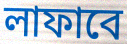
লাফাবে